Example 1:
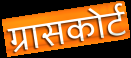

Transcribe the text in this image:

ग्रासकोर्ट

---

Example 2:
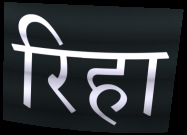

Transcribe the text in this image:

रिहा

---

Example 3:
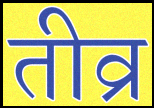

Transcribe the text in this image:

तीव्र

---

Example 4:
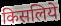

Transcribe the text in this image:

किसलिये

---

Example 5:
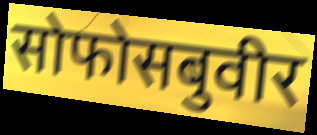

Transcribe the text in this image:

सोफोसबुवीर